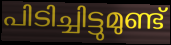
പിടിച്ചിട്ടുമുണ്ട്